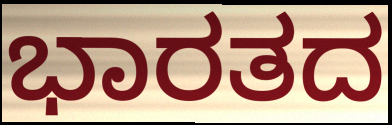
ಭಾರತದ